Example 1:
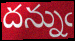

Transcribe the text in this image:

దన్నుఁ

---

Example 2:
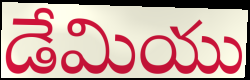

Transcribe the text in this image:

డేమియు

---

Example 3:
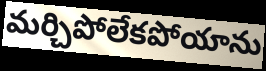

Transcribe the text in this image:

మర్చిపోలేకపోయాను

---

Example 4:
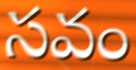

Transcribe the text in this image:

సవం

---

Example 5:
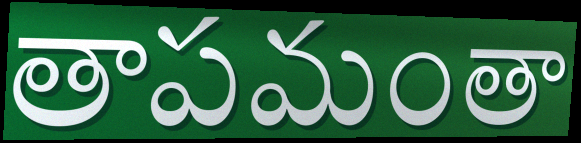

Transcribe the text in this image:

తాపమంతా